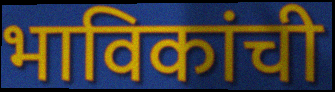
भाविकांची